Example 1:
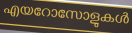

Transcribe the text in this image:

എയറോസോളുകൾ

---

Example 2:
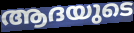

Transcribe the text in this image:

ആദയുടെ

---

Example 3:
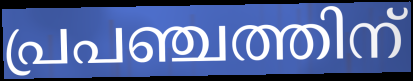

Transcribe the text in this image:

പ്രപഞ്ചത്തിന്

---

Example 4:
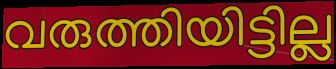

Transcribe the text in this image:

വരുത്തിയിട്ടില്ല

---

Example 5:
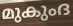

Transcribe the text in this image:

മുകുംദ